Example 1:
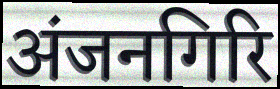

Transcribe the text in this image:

अंजनगिरि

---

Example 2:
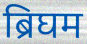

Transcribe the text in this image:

ब्रिघम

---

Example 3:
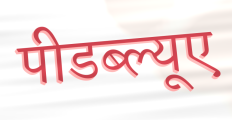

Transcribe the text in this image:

पीडब्ल्यूए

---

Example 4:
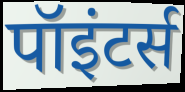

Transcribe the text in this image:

पॉइंटर्स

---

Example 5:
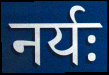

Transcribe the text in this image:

नर्यः